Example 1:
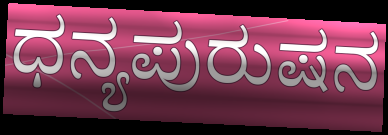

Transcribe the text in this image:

ಧನ್ಯಪುರುಷನ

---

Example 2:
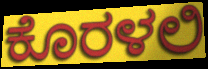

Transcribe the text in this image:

ಕೊರಳಲಿ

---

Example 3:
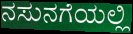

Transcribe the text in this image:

ನಸುನಗೆಯಲ್ಲಿ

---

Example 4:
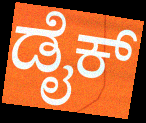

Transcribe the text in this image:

ಡೈಕ್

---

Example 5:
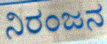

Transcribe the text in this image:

ನಿರಂಜನ